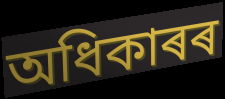
অধিকাৰৰ